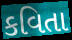
કવિતા